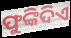
ଫୁଙ୍କିଦିଏ